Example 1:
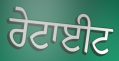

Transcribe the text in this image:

ਰੇਟਾਈਟ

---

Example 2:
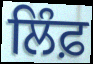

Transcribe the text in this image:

ਲਿੰਫ਼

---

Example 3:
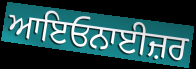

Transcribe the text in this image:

ਆਇਓਨਾਈਜ਼ਰ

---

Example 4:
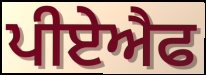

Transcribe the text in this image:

ਪੀਏਐਫ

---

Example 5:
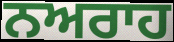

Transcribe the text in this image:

ਨਅਰਾਹ